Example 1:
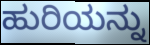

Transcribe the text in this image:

ಹುರಿಯನ್ನು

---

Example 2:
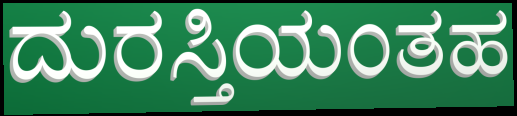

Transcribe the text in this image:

ದುರಸ್ತಿಯಂತಹ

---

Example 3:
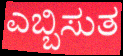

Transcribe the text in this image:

ಎಬ್ಬಿಸುತ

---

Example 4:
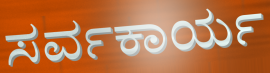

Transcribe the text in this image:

ಸರ್ವಕಾರ್ಯ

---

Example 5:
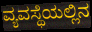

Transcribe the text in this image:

ವ್ಯವಸ್ಥೆಯಲ್ಲಿನ